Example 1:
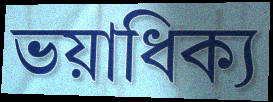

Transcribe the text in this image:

ভয়াধিক্য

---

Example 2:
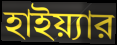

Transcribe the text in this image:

হাইয়্যার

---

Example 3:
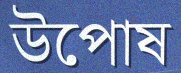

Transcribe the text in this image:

উপোষ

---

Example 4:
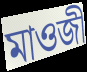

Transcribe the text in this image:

মাওজী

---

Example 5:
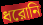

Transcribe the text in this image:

ধরোনি